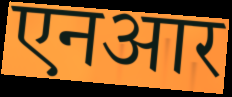
एनआर